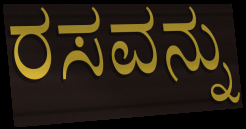
ರಸವನ್ನು